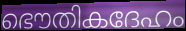
ഭൌതികദേഹം